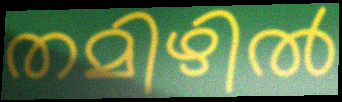
തമിഴിൽ